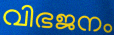
വിഭജനം